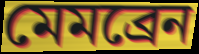
মেমব্ৰেন